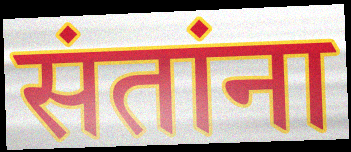
संतांना